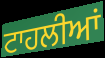
ਟਾਹਲੀਆਂ